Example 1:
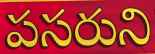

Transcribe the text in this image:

పసరుని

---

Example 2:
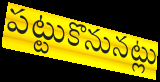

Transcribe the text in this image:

పట్టుకొనునట్లు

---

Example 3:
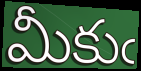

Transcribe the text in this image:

మీకుఁ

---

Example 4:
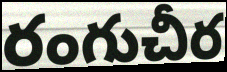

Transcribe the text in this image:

రంగుచీర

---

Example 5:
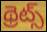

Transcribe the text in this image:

థ్రెట్స్